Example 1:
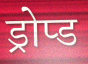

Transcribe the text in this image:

ड्रोप्ड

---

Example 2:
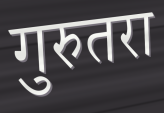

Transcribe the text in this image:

गुरुतरा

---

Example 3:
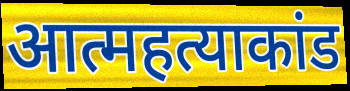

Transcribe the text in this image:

आत्महत्याकांड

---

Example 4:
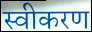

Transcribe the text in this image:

स्वीकरण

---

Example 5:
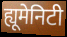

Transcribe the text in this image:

ह्यूमेनिटी